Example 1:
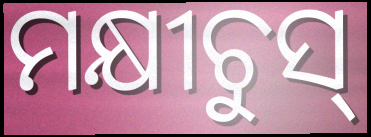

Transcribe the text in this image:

ମକ୍ଷୀଚୁସ୍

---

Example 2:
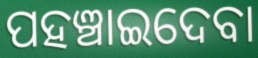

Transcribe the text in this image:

ପହଞ୍ଚାଇଦେବା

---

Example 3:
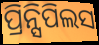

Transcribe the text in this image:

ପ୍ରିନ୍ସିପିଲସ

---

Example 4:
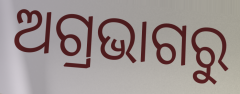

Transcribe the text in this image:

ଅଗ୍ରଭାଗରୁ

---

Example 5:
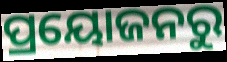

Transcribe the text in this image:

ପ୍ରୟୋଜନରୁ